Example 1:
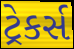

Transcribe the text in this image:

ટ્રેકર્સ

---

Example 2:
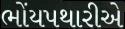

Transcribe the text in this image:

ભોંયપથારીએ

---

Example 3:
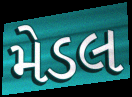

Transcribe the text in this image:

મેડલ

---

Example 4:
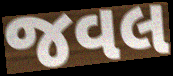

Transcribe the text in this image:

જવલ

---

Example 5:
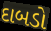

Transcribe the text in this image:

દાબડો